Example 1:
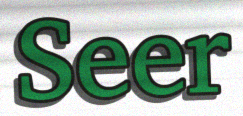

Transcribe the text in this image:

Seer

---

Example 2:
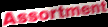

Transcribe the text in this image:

Assortment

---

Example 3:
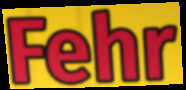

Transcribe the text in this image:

Fehr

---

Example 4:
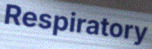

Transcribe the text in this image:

Respiratory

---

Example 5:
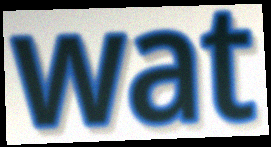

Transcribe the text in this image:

wat